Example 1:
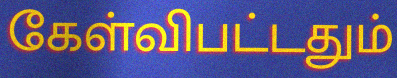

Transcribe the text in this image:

கேள்விபட்டதும்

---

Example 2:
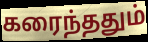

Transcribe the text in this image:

கரைந்ததும்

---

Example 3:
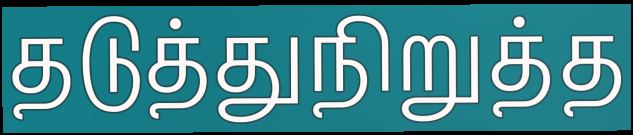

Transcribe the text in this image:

தடுத்துநிறுத்த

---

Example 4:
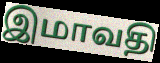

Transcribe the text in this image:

இமாவதி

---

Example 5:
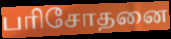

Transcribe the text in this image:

பரிசோதனை